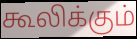
கூலிக்கும்